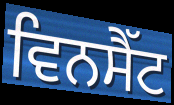
ਵਿਨਸੈੱਟ